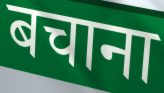
बचाना